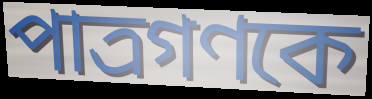
পাত্রগণকে